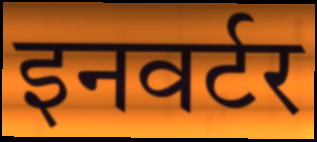
इनवर्टर